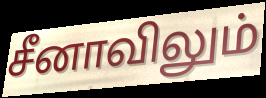
சீனாவிலும்